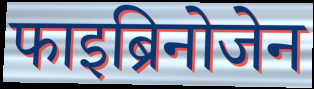
फाइब्रिनोजेन